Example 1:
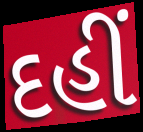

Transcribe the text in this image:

દહીં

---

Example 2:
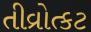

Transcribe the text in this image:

તીવ્રોત્કટ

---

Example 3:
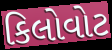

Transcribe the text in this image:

કિલોવોટ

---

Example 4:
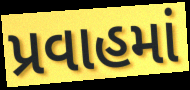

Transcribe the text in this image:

પ્રવાહમાં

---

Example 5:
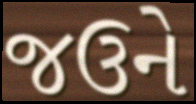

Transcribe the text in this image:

જઉને